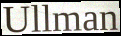
Ullman